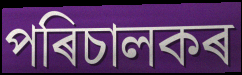
পৰিচালকৰ